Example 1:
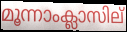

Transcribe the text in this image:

മൂന്നാംക്ലാസില്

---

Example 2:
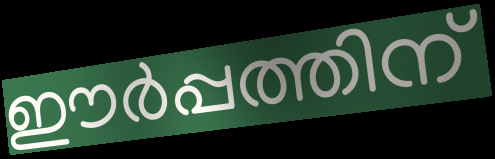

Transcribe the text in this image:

ഈർപ്പത്തിന്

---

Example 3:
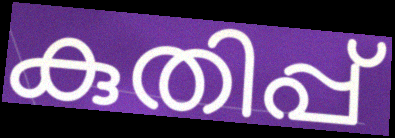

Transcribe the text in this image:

കുതിപ്പ്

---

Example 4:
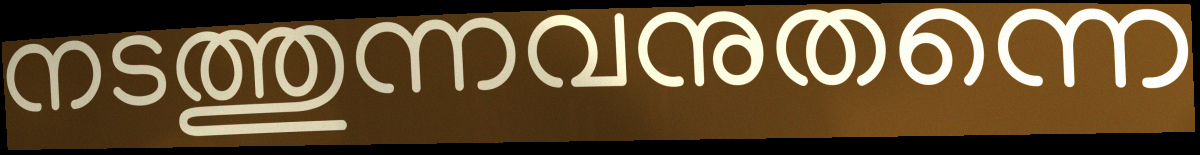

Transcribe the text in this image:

നടത്തുന്നവനുതന്നെ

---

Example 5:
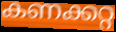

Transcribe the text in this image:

കണക്കറ്റ